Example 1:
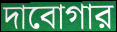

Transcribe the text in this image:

দাবোগার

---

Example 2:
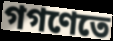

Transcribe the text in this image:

গগণেতে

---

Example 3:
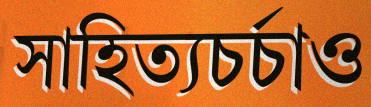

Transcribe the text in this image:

সাহিত্যচর্চাও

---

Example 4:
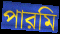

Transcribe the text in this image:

পারমি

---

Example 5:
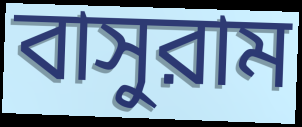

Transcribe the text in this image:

বাসুরাম